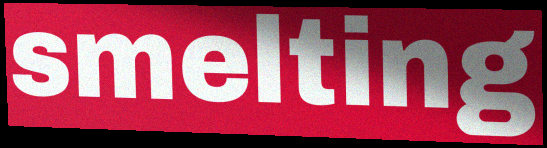
smelting